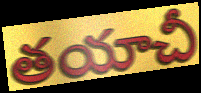
తయాచీ